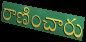
రాణించారు